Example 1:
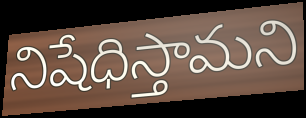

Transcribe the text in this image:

నిషేధిస్తామని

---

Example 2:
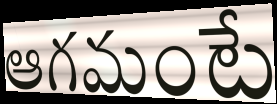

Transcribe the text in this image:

ఆగమంటే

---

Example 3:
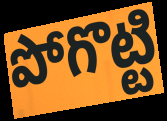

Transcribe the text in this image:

పోగొట్టి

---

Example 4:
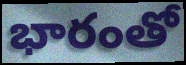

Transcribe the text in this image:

భారంతో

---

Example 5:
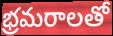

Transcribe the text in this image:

భ్రమరాలతో